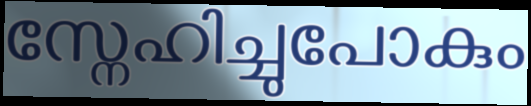
സ്നേഹിച്ചുപോകും